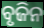
ବୃଜିନ